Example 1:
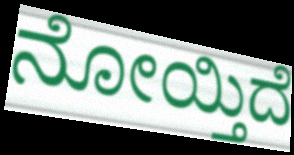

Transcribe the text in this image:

ನೋಯ್ತಿದೆ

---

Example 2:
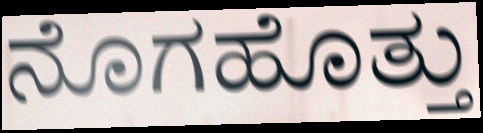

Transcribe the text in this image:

ನೊಗಹೊತ್ತು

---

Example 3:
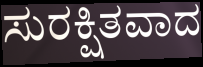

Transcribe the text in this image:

ಸುರಕ್ಷಿತವಾದ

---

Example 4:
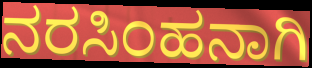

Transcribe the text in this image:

ನರಸಿಂಹನಾಗಿ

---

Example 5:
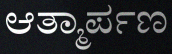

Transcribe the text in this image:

ಆತ್ಮಾರ್ಪಣ